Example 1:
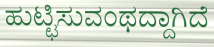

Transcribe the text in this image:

ಹುಟ್ಟಿಸುವಂಥದ್ದಾಗಿದೆ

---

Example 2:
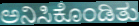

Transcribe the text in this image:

ಅನಿಸಿಕೊಂಡಿತು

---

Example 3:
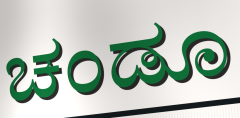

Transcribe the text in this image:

ಚಂಡೂ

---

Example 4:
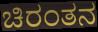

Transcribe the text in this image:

ಚಿರಂತನ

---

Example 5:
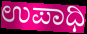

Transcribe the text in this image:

ಉಪಾಧಿ